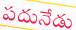
పదునేడు